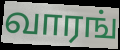
வாரங்